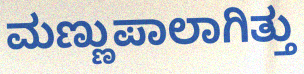
ಮಣ್ಣುಪಾಲಾಗಿತ್ತು